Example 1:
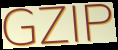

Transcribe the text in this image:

GZIP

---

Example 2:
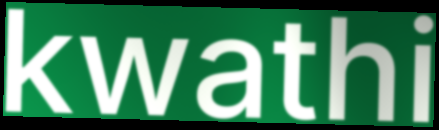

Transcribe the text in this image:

kwathi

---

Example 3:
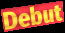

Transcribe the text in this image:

Debut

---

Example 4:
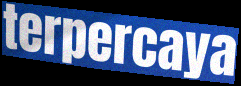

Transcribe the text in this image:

terpercaya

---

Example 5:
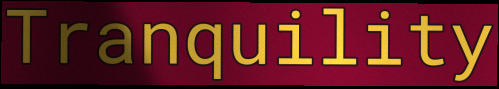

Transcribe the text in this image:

Tranquility